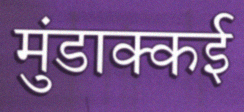
मुंडाक्कई